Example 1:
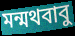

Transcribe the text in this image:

মন্মথবাবু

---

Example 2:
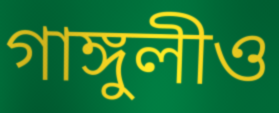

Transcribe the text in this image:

গাঙ্গুলীও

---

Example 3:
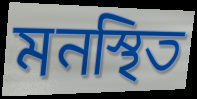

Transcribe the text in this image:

মনস্থিত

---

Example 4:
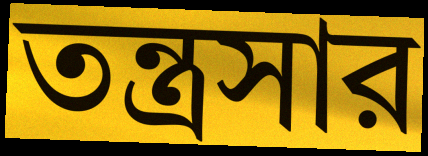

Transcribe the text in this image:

তন্ত্রসার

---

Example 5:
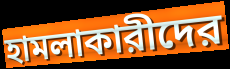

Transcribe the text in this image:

হামলাকারীদের